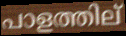
പാളത്തില്